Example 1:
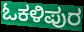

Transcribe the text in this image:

ಓಕಳಿಪುರ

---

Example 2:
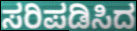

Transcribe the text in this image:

ಸರಿಪಡಿಸಿದ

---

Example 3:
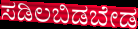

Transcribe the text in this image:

ಸಡಿಲಬಿಡಬೇಡ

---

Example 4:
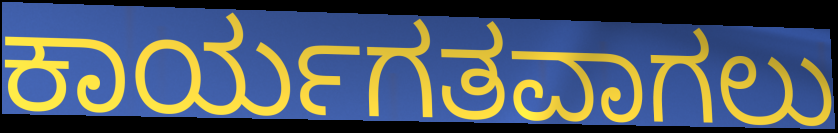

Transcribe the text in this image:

ಕಾರ್ಯಗತವಾಗಲು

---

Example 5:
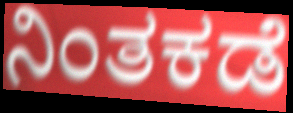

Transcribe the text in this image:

ನಿಂತಕಡೆ